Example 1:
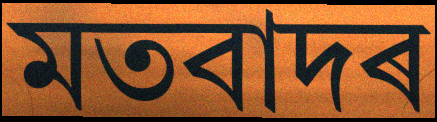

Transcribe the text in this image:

মতবাদৰ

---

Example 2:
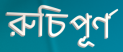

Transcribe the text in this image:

ৰুচিপূৰ্ণ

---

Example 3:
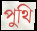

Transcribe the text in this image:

পুথি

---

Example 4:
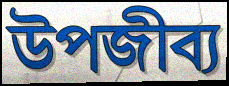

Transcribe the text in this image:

উপজীব্য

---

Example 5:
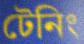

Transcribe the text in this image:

টেনিং